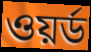
ওয়র্ড